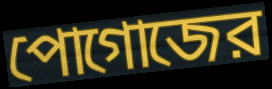
পোগোজের